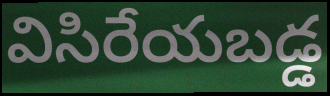
విసిరేయబడ్డ